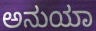
ಅನುಯಾ